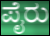
ಪೈರು